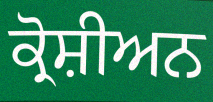
ਕ੍ਰੋਸ਼ੀਅਨ